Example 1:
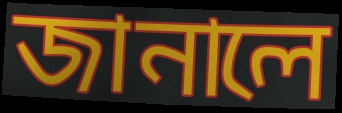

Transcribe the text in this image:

জানালে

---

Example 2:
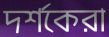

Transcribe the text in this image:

দর্শকেরা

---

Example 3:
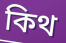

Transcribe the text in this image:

কিথ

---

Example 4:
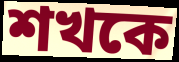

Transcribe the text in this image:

শখকে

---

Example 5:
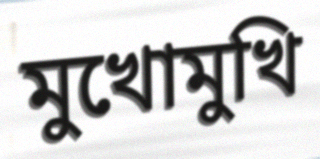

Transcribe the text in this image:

মুখোমুখি